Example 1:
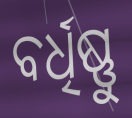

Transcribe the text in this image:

ବର୍ଧିଷ୍ଣୁ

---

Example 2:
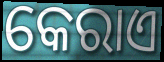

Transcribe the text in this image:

କେରାଏ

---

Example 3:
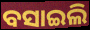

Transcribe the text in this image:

ବସାଇଲି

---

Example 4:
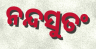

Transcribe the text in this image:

ନନ୍ଦସୁତଂ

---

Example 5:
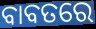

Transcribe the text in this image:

ବାବତରେ